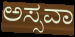
ಅಸ್ಸವಾ